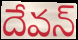
దేవన్